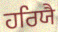
ਹਰਿਯੈ